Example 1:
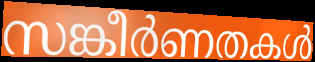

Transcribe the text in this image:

സങ്കീർണതകൾ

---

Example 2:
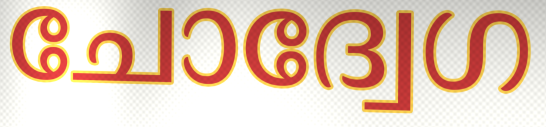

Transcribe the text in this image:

ചോദ്വേഗ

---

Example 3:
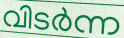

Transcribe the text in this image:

വിടർന്ന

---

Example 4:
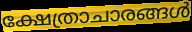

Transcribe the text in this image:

ക്ഷേത്രാചാരങ്ങൾ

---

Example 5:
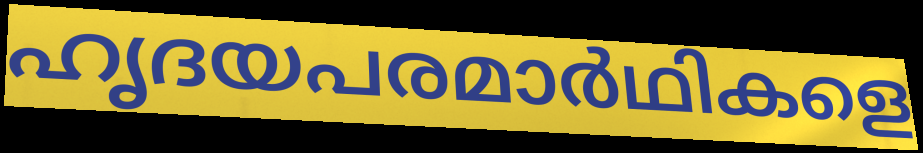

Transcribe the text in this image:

ഹൃദയപരമാർഥികളെ